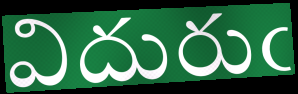
విదురుఁ